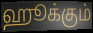
ஹூக்கும்